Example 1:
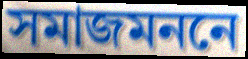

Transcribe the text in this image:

সমাজমননে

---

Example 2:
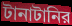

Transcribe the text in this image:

টানাটানির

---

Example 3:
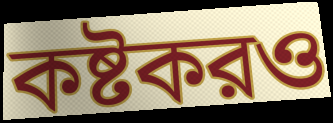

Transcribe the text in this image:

কষ্টকরও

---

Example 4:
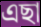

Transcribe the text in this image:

এছা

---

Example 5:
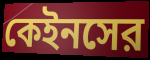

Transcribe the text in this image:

কেইনসের